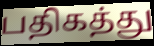
பதிகத்து